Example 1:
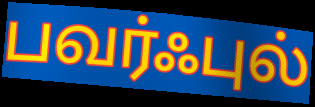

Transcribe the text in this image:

பவர்ஃபுல்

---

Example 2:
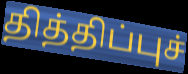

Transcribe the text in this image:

தித்திப்புச்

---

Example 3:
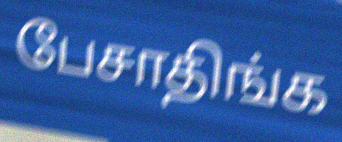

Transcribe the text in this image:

பேசாதிங்க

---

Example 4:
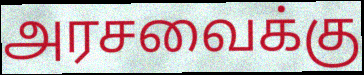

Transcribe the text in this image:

அரசவைக்கு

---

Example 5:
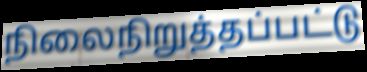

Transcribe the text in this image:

நிலைநிறுத்தப்பட்டு